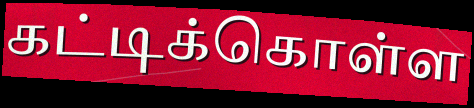
கட்டிக்கொள்ள